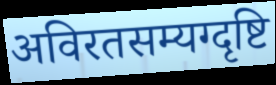
अविरतसम्यग्दृष्टि